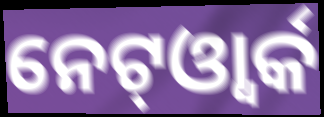
ନେଟ୍ଓ୍ବାର୍କ